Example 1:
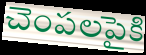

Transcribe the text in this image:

చెంపలపైకి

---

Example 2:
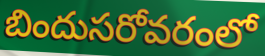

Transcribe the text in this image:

బిందుసరోవరంలో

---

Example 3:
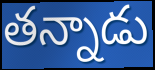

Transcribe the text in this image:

తన్నాడు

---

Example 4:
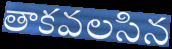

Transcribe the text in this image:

తాకవలసిన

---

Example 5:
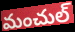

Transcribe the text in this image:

మంచుల్